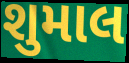
શુમાલ